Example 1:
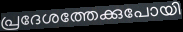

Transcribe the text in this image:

പ്രദേശത്തേക്കുപോയി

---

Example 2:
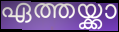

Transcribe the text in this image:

ഏത്തയ്ക്കാ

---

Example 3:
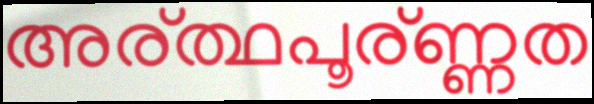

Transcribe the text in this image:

അര്ത്ഥപൂര്ണ്ണത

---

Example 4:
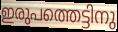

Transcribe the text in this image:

ഇരുപത്തെട്ടിനു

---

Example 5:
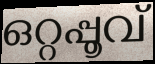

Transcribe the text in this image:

ഒറ്റപ്പൂവ്